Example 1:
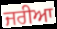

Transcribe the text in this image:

ਜਰੀਆ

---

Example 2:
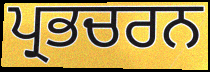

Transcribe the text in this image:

ਪ੍ਰਭਚਰਨ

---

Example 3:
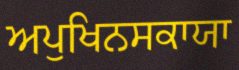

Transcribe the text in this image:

ਅਪੁਖਿਨਸਕਾਯਾ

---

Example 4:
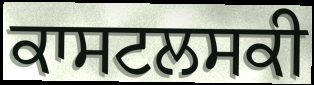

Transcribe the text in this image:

ਕਾਸਟਲਸਕੀ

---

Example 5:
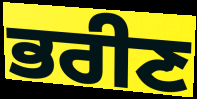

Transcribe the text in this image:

ਭਰੀਣ